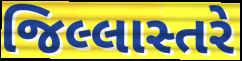
જિલ્લાસ્તરે